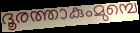
ദൂരത്താകുംമുമ്പെ